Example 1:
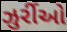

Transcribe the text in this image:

ઝુર્રીઓ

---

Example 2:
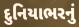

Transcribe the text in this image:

દુનિયાભરનું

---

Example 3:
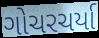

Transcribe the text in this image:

ગોચરચર્યા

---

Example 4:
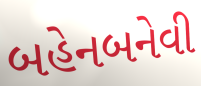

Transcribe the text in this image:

બહેનબનેવી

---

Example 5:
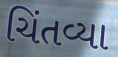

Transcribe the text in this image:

ચિંતવ્યા